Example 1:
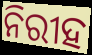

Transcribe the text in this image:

ନିରୀହ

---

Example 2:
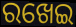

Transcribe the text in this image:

ରଖେଇ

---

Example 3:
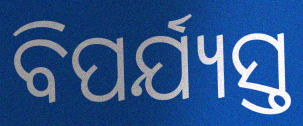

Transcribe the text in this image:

ବିପର୍ଯ୍ୟସ୍ତ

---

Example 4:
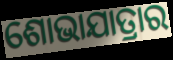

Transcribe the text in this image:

ଶୋଭାଯାତ୍ରାର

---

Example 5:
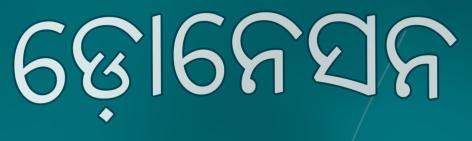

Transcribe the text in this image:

ଡ଼ୋନେସନ